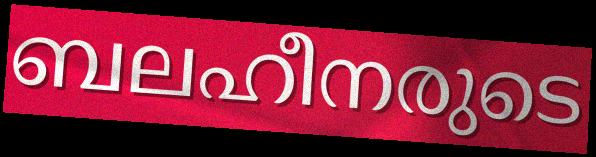
ബലഹീനരുടെ